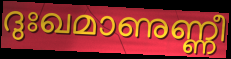
ദുഃഖമാണുണ്ണീ